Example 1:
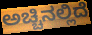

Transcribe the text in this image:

ಅಚ್ಚಿನಲ್ಲಿದೆ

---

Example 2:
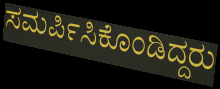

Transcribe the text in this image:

ಸಮರ್ಪಿಸಿಕೊಂಡಿದ್ದರು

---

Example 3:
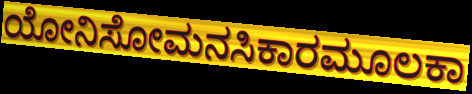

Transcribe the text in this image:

ಯೋನಿಸೋಮನಸಿಕಾರಮೂಲಕಾ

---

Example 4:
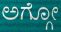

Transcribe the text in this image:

ಅಗ್ಗೋ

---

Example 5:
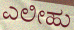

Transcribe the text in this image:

ಎಲೀಹು